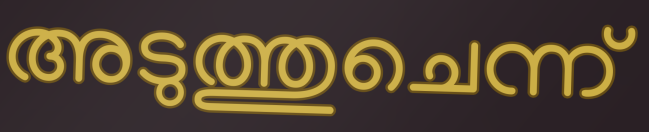
അടുത്തുചെന്ന്